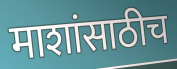
माशांसाठीच